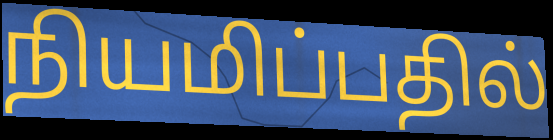
நியமிப்பதில்